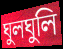
ঘুলঘুলি